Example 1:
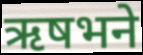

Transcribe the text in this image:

ऋषभने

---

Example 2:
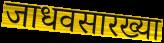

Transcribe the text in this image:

जाधवसारख्या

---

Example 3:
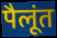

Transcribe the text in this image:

पैलूंत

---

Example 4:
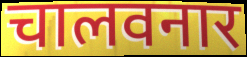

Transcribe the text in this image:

चालवनार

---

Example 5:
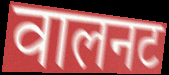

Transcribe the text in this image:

वालनट